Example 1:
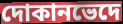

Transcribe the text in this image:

দোকানভেদে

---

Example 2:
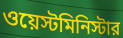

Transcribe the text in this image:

ওয়েস্টমিনিস্টার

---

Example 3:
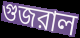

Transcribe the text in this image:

গুজরাল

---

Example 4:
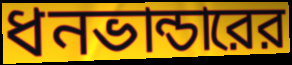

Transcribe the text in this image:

ধনভান্ডারের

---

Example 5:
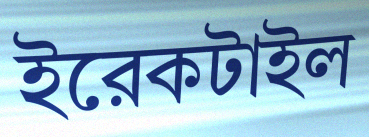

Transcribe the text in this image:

ইরেকটাইল